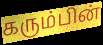
கரும்பின்